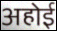
अहोई